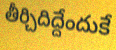
తీర్చిదిద్దేందుకే